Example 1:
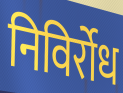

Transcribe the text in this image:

निविर्रोध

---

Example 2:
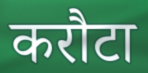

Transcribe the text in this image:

करौटा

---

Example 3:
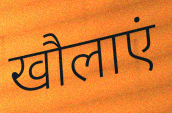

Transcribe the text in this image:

खौलाएं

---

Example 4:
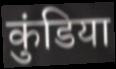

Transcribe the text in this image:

कुंडिया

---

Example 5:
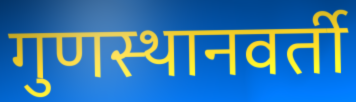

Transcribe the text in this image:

गुणस्थानवर्ती